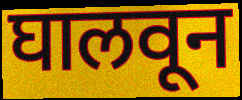
घालवून